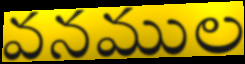
వనముల